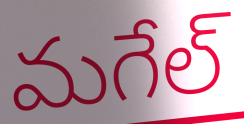
మగేల్